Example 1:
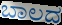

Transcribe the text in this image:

ಬಾಲದ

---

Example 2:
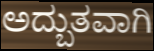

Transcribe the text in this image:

ಅದ್ಬುತವಾಗಿ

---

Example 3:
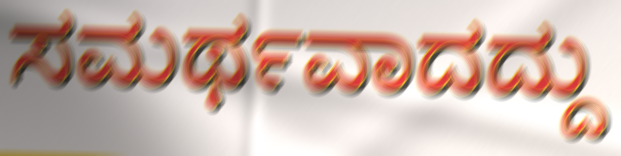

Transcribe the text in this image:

ಸಮರ್ಥವಾದದ್ದು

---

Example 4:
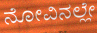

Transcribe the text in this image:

ನೋವಿನಲ್ಲೇ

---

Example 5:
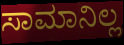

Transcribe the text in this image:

ಸಾಮಾನಿಲ್ಲ